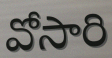
వోసారి